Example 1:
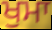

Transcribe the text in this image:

ਖੁਮਾ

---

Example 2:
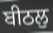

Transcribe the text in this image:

ਬੀਠਲੁ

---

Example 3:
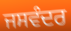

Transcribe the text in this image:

ਜਸਵੰਦਰ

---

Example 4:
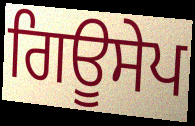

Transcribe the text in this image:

ਗਿਊਸੇਪ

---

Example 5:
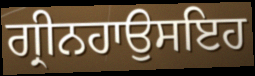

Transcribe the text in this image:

ਗ੍ਰੀਨਹਾਉਸਇਹ